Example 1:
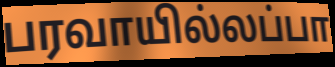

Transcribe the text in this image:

பரவாயில்லப்பா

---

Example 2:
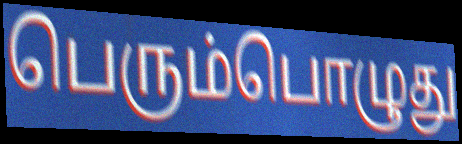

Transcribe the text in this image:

பெரும்பொழுது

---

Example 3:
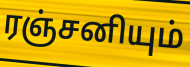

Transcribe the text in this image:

ரஞ்சனியும்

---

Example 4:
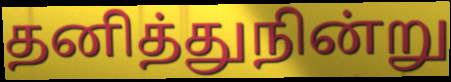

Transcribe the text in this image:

தனித்துநின்று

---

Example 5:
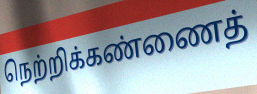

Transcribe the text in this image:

நெற்றிக்கண்ணைத்